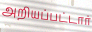
அறியப்பட்டார்